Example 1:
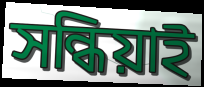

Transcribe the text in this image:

সন্ধিয়াই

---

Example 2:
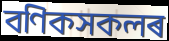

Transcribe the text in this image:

বণিকসকলৰ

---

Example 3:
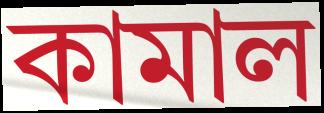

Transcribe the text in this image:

কামাল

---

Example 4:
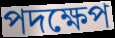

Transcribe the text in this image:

পদক্ষেপ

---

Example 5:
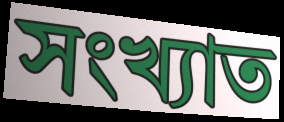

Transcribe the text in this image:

সংখ্যাত